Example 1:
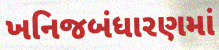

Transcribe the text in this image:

ખનિજબંધારણમાં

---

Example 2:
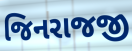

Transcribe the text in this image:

જિનરાજજી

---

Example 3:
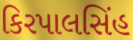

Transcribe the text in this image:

કિરપાલસિંહ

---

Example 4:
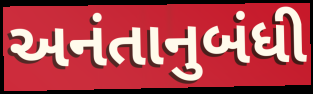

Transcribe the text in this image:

અનંતાનુબંધી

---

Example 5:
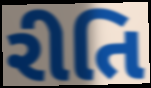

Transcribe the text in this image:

રીતિ